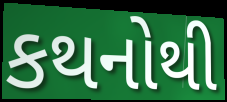
કથનોથી